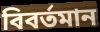
বিবর্তমান